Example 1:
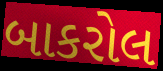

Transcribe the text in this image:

બાકરોલ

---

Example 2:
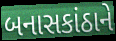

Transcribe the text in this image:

બનાસકાંઠાને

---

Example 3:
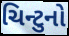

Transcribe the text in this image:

ચિન્ટુનો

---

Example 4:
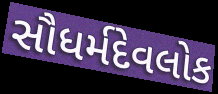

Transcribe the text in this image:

સૌધર્મદેવલોક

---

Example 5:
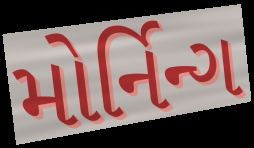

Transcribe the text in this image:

મોર્નિન્ગ